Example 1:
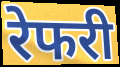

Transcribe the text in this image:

रेफरी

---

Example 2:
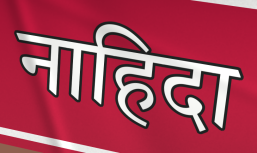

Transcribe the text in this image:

नाहिदा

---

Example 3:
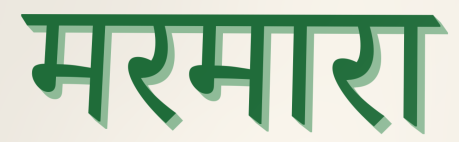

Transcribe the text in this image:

मरमारा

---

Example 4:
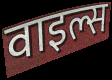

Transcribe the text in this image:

वाइल्स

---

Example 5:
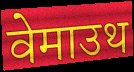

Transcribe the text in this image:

वेमाउथ